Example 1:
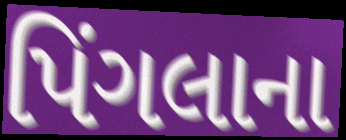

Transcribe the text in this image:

પિંગલાના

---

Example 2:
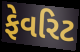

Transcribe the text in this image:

ફેવરિટ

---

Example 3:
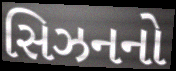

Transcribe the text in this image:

સિઝનનો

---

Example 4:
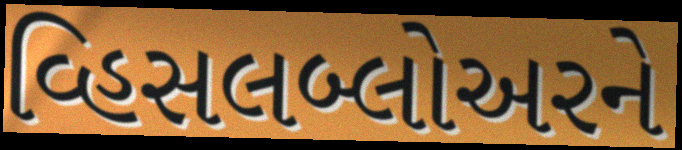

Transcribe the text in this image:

વ્હિસલબ્લોઅરને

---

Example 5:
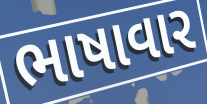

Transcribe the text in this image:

ભાષાવાર